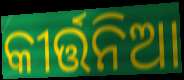
କୀର୍ତ୍ତନିଆ